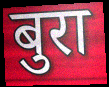
बुरा